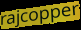
rajcopper